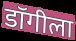
डॉगीला